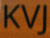
KVJ